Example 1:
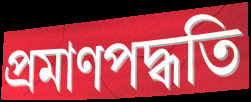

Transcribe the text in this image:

প্রমাণপদ্ধতি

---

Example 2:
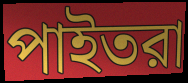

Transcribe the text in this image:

পাইতরা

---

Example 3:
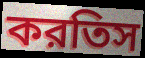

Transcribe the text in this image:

করতিস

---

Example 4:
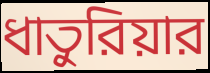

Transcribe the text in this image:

ধাতুরিয়ার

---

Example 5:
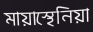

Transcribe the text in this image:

মায়াস্থেনিয়া